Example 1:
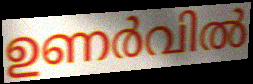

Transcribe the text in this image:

ഉണർവിൽ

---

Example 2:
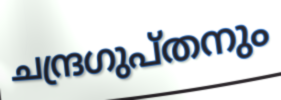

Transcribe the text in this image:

ചന്ദ്രഗുപ്തനും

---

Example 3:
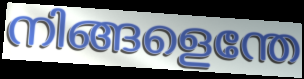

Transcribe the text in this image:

നിങ്ങളെന്തേ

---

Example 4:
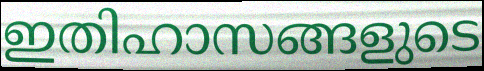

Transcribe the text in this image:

ഇതിഹാസങ്ങളുടെ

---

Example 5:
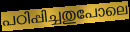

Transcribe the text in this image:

പഠിപ്പിച്ചതുപോലെ